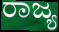
ರಾಜ್ಯ